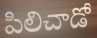
పిలిచాడో